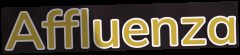
Affluenza